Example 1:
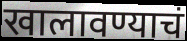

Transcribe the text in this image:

खालावण्याचं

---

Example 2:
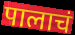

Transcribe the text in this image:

पालाचं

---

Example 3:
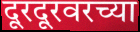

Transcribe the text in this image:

दूरदूरवरच्या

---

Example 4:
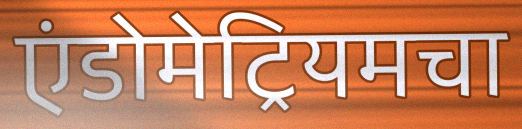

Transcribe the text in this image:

एंडोमेट्रियमचा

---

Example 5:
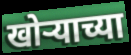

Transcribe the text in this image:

खोऱ्याच्या